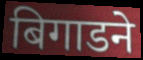
बिगाडने